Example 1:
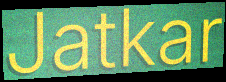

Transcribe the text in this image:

Jatkar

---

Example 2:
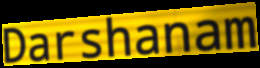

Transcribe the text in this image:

Darshanam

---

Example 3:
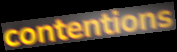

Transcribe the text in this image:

contentions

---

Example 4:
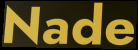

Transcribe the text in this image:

Nade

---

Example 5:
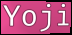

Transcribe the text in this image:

Yoji